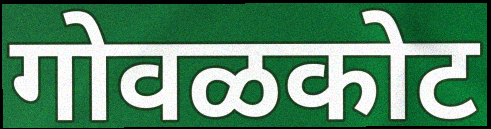
गोवळकोट